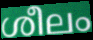
ശീലം